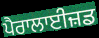
ਪੈਰਾਲਾਈਜ਼ਡ